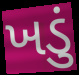
ખડું